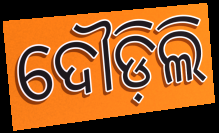
ଦୌଡ଼ିଲି